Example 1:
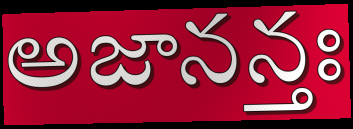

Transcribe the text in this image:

అజానన్తః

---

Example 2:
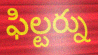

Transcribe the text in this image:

ఫిల్టర్ను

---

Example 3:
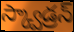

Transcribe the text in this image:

స్క్వాడ్రన్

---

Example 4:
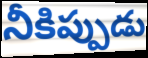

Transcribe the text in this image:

నీకిప్పుడు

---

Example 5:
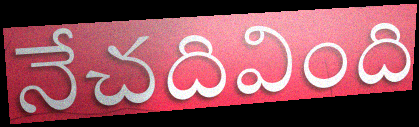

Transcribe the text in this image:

నేచదివింది